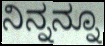
ನಿನ್ನನ್ನೂ